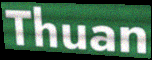
Thuan